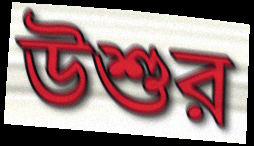
উশুর